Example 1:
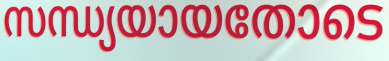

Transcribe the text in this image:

സന്ധ്യയായതോടെ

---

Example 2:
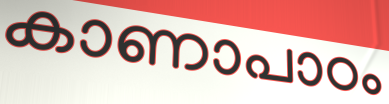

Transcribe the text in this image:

കാണാപാഠം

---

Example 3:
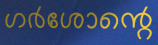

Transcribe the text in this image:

ഗർശോന്റെ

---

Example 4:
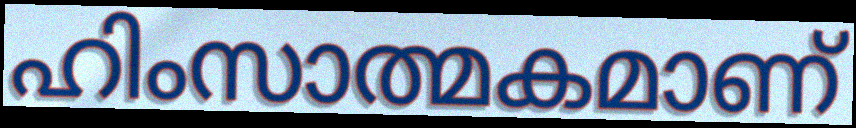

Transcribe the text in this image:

ഹിംസാത്മകമാണ്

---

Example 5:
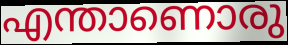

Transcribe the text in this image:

എന്താണൊരു